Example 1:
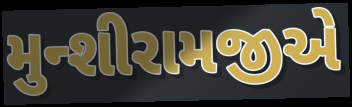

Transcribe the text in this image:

મુન્શીરામજીએ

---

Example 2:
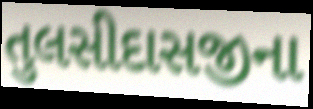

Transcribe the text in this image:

તુલસીદાસજીના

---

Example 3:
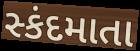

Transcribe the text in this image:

સ્કંદમાતા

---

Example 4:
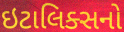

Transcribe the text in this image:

ઇટાલિક્સનો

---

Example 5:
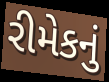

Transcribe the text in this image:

રીમેકનું